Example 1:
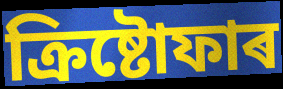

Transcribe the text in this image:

ক্ৰিষ্টোফাৰ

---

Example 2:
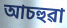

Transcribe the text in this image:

আচহুৱা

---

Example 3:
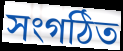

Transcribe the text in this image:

সংগঠিত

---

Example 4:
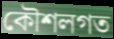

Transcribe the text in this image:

কৌশলগত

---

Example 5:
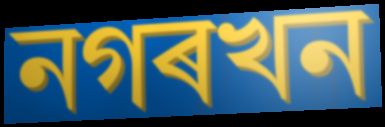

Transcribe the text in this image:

নগৰখন